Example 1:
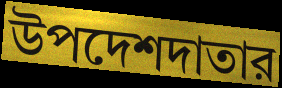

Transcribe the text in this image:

উপদেশদাতার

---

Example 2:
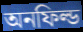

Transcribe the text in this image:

অনফিল্ড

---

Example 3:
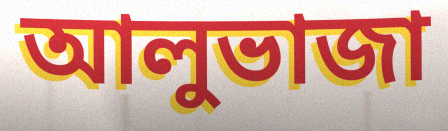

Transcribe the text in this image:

আলুভাজা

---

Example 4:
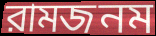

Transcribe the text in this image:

রামজনম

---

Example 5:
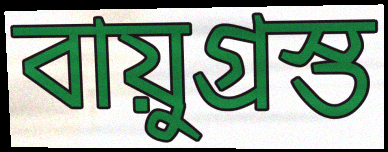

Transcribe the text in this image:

বায়ুগ্রস্ত